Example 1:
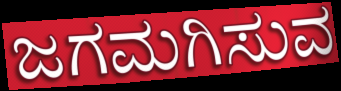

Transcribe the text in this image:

ಜಗಮಗಿಸುವ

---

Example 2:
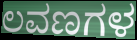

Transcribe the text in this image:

ಲವಣಗಳ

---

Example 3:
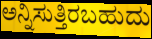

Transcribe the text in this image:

ಅನ್ನಿಸುತ್ತಿರಬಹುದು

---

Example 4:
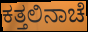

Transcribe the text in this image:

ಕತ್ತಲಿನಾಚೆ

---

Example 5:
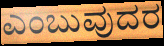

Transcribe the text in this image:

ಎಂಬುವುದರ